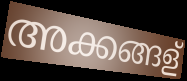
അക്കങ്ങള്